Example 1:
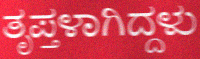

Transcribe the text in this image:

ತೃಪ್ತಳಾಗಿದ್ದಳು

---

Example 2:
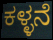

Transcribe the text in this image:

ಕಳ್ಳನೆ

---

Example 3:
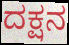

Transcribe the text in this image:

ದಕ್ಷನ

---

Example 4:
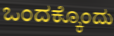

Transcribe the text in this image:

ಒಂದಕ್ಕೊಂದು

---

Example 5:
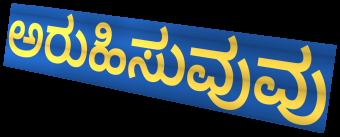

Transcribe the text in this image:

ಅರುಹಿಸುವುವು